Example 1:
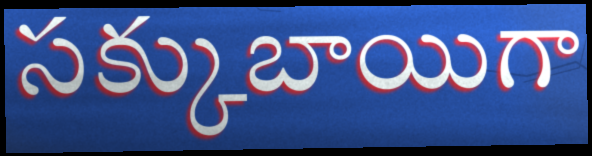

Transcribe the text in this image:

సక్కుబాయిగా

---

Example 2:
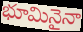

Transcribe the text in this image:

భూమినైనా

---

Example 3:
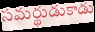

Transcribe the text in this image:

సమర్థుడుకాడు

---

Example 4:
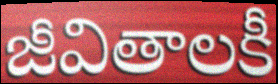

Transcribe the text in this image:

జీవితాలకీ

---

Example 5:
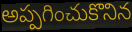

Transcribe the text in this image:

అప్పగించుకొనిన